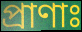
প্রাণাঃ